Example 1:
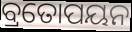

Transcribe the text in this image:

ବ୍ରତୋପୟନ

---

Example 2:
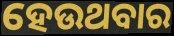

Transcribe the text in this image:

ହେଉଥବାର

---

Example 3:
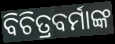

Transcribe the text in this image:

ବିଚିତ୍ରବର୍ମାଙ୍କ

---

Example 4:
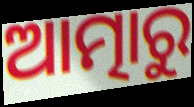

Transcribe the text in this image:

ଆତ୍ମାରୁ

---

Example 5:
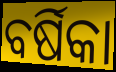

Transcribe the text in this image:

ବର୍ଷିକା